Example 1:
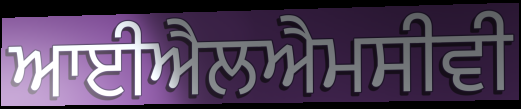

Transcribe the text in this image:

ਆਈਐਲਐਮਸੀਵੀ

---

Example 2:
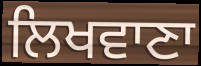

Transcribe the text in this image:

ਲਿਖਵਾਣਾ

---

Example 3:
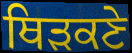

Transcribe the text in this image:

ਥਿੜਕਣੇ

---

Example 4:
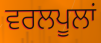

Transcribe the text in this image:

ਵਰਲਪੂਲਾਂ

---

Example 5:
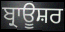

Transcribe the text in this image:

ਬ੍ਰਾਊਸ਼ਰ